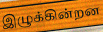
இழுக்கின்றன